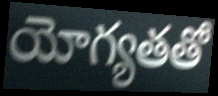
యోగ్యతతో